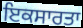
ਇਕਸਾਰਤਾ